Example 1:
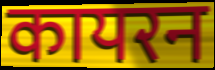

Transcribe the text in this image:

कायरन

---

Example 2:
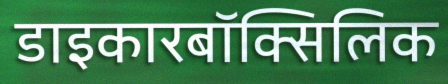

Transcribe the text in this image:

डाइकारबॉक्सिलिक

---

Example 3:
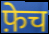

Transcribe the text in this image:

फ़ेच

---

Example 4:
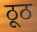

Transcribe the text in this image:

ठूठ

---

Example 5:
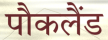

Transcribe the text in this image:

पौकलैंड